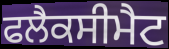
ਫਲੈਕਸੀਮੈਟ